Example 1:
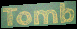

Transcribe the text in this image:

Tomb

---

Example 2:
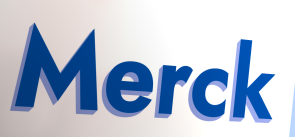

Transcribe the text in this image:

Merck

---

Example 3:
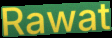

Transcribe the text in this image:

Rawat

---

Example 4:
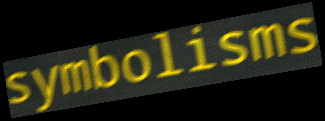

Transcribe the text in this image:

symbolisms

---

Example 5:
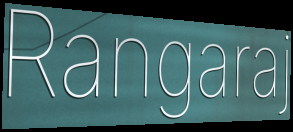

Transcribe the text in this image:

Rangaraj